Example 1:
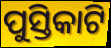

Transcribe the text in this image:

ପୁସ୍ତିକାଟି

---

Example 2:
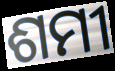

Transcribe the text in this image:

ଶମୀ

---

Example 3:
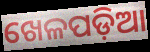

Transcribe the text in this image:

ଖେଳପଡ଼ିଆ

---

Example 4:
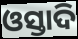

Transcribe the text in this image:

ଓସ୍ତାଦି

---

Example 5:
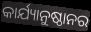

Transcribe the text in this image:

କାର୍ଯ୍ୟାନୁଷ୍ଠାନର